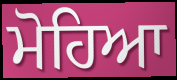
ਮੋਹਿਆ